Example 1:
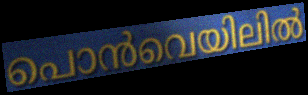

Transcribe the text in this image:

പൊൻവെയിലിൽ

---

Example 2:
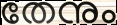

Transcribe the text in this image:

തേനും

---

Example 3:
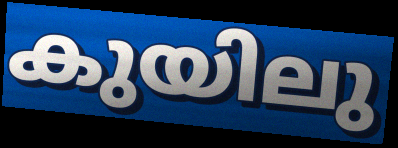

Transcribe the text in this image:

കുയിലു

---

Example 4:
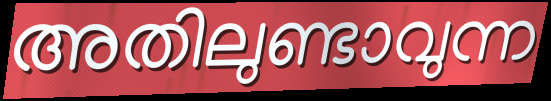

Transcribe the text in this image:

അതിലുണ്ടാവുന്ന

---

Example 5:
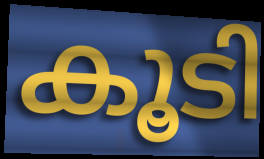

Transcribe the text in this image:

കൂടി